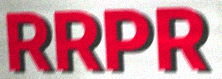
RRPR